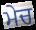
ਮੇਚ